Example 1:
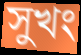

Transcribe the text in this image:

সুখং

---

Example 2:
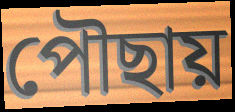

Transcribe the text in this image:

পৌছায়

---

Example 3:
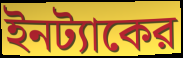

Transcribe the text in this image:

ইনট্যাকের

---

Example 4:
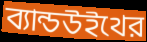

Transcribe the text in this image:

ব্যান্ডউইথের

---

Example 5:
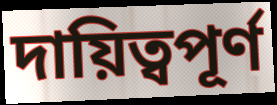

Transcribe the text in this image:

দায়িত্বপূর্ণ